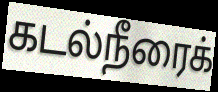
கடல்நீரைக்